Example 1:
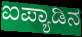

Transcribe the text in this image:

ಐಪ್ಯಾಡಿನ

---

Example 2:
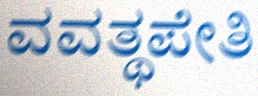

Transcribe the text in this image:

ವವತ್ಥಪೇತಿ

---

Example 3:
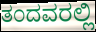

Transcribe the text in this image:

ತಂದವರಲ್ಲಿ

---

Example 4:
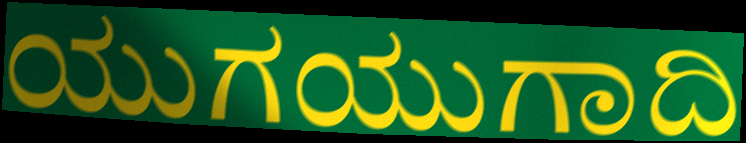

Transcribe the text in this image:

ಯುಗಯುಗಾದಿ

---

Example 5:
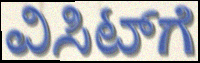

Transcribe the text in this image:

ವಿಸಿಟ್‌ಗೆ